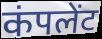
कंपलेंट